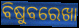
ବିଷୁବରେଖା